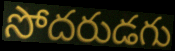
సోదరుడగు